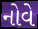
નોવે